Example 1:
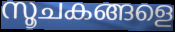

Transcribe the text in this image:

സൂചകങ്ങളെ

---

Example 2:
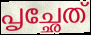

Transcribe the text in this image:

പൃച്ഛേത്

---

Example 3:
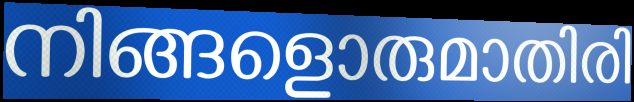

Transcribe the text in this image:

നിങ്ങളൊരുമാതിരി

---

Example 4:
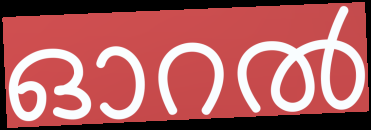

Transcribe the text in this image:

ഓറൽ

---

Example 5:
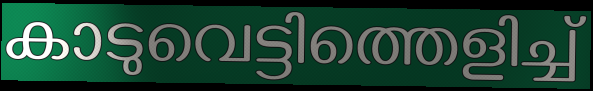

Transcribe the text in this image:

കാടുവെട്ടിത്തെളിച്ച്